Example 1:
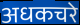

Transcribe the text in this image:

अधकचरे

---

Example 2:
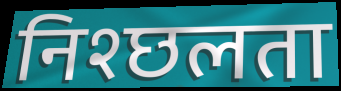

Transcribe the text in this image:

निश्छलता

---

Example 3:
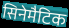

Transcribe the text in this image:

सिनेमैटिक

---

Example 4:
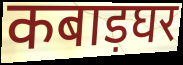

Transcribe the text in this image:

कबाड़घर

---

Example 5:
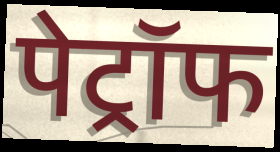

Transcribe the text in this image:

पेट्रॉफ